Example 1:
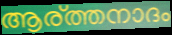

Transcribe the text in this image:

ആര്ത്തനാദം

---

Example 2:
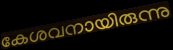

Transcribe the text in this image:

കേശവനായിരുന്നു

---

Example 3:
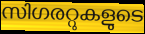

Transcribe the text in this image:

സിഗരറ്റുകളുടെ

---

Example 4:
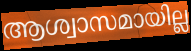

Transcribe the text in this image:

ആശ്വാസമായില്ല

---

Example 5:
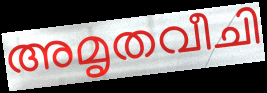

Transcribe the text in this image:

അമൃതവീചി